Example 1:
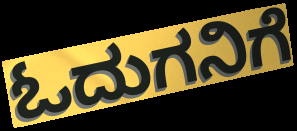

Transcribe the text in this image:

ಓದುಗನಿಗೆ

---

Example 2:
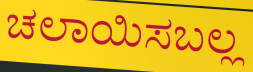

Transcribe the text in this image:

ಚಲಾಯಿಸಬಲ್ಲ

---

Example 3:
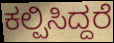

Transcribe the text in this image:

ಕಲ್ಪಿಸಿದ್ದರೆ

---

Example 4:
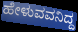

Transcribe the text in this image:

ಹೇಳುವವನಿದ್ದ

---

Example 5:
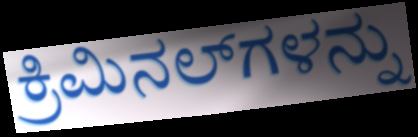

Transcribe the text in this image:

ಕ್ರಿಮಿನಲ್‍ಗಳನ್ನು